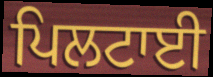
ਪਿਲਟਾਈ